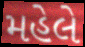
મહેલે